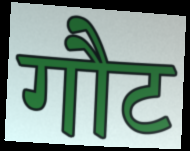
गौट